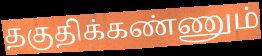
தகுதிக்கண்ணும்